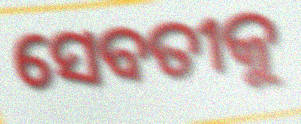
ସେବତୀକୁ